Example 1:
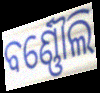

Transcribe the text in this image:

ବର୍ଣ୍ଣୌଲି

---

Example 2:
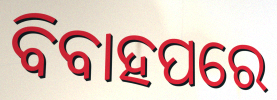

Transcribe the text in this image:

ବିବାହପରେ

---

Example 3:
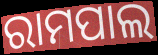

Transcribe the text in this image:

ରାମପାଲ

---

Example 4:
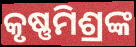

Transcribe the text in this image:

କୃଷ୍ଣମିଶ୍ରଙ୍କ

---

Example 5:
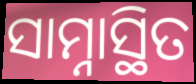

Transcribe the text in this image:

ସାମ୍ନାସ୍ଥିତ